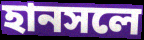
হানসলে